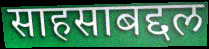
साहसाबद्दल